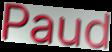
Paud